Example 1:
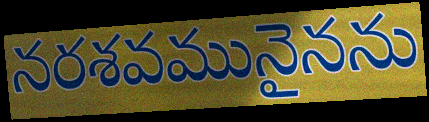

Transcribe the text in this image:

నరశవమునైనను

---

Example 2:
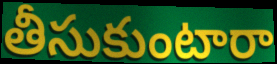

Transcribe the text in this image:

తీసుకుంటారా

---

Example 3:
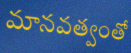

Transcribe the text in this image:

మానవత్వంతో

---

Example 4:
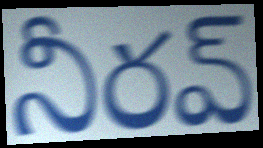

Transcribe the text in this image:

నీరవ్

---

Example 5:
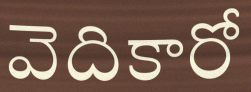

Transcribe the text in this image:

వెదికారో